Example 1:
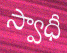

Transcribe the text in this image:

స్వాధీ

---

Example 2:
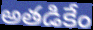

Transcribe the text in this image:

అతడికేం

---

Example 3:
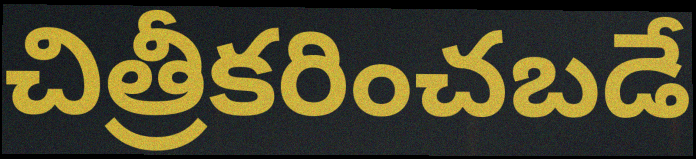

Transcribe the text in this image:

చిత్రీకరించబడే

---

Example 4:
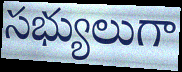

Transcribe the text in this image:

సభ్యులుగా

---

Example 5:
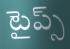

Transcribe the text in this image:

టైప్స్